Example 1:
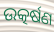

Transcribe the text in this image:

ଉତ୍କର୍ଷଣ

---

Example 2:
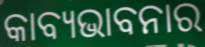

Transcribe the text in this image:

କାବ୍ୟଭାବନାର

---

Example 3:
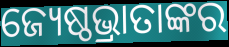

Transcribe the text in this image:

ଜ୍ୟେଷ୍ଠଭ୍ରାତାଙ୍କର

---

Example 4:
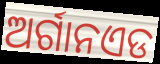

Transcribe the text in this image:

ଅର୍ଗାନଏଡ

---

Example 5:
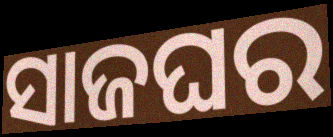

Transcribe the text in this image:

ସାଜଘର